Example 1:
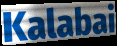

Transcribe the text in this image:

Kalabai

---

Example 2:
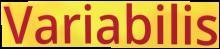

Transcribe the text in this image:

Variabilis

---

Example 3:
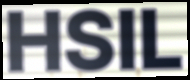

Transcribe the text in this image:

HSIL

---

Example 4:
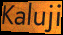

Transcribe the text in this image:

Kaluji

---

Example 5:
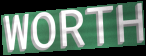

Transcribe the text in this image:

WORTH